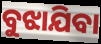
ବୁଝାଯିବା